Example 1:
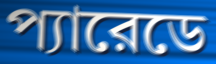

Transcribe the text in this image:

প্যারেডে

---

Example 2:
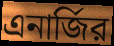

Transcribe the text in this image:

এনার্জির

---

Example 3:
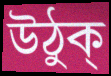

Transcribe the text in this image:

উঠুক্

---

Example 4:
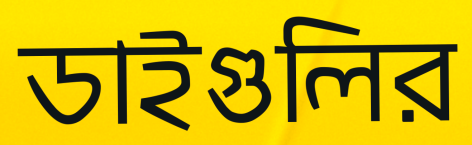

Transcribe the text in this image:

ডাইগুলির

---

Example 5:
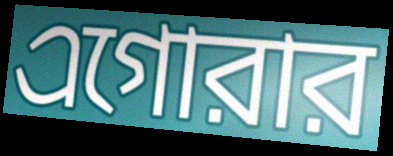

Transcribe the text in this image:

এগোরার